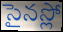
సైనస్లో